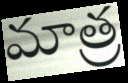
మాత్ర